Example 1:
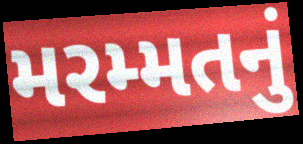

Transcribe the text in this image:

મરમ્મતનું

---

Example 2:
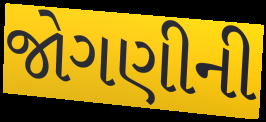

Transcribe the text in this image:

જોગણીની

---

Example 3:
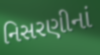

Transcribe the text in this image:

નિસરણીનાં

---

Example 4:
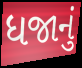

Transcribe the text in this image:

ધજાનું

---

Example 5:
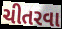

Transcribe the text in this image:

ચીતરવા